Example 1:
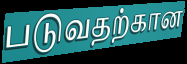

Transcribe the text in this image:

படுவதற்கான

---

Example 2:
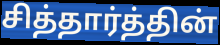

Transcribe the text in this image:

சித்தார்த்தின்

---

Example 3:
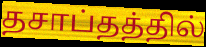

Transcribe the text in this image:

தசாப்தத்தில்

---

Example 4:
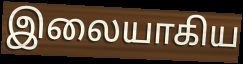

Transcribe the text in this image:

இலையாகிய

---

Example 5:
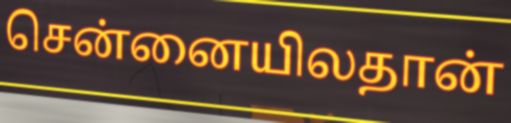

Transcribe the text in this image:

சென்னையிலதான்